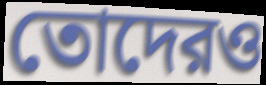
তোদেরও